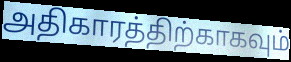
அதிகாரத்திற்காகவும்